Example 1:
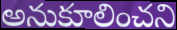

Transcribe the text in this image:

అనుకూలించని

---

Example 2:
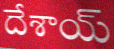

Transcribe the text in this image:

దేశాయ్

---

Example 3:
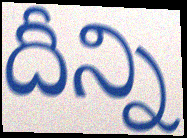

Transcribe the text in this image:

దీన్ని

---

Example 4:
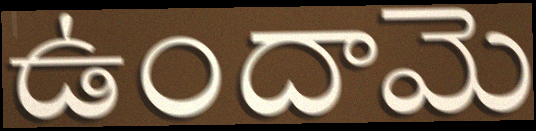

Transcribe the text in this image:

ఉందామె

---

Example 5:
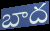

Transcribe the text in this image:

బాద